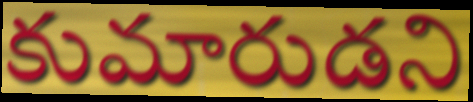
కుమారుడని